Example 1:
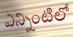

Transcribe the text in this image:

ఎన్నింటిలో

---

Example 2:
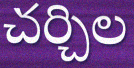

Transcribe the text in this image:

చర్చిల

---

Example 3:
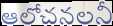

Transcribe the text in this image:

ఆలోచనలనీ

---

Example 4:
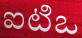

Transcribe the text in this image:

ఐటిఒ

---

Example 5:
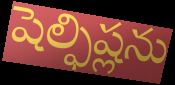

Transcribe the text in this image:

షెల్ఫిష్లను